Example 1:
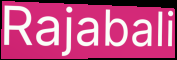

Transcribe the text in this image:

Rajabali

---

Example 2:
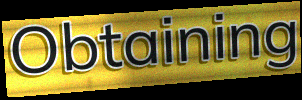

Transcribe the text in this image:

Obtaining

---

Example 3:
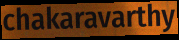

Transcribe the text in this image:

chakaravarthy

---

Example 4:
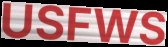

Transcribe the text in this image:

USFWS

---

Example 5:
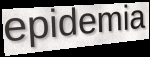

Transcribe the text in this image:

epidemia